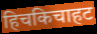
हिचकिचाहट